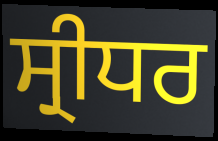
ਸ੍ਰੀਧਰ